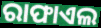
ରାଫାଏଲ